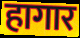
हागार